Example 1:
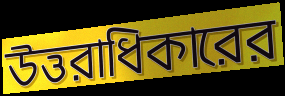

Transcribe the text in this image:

উত্তরাধিকারের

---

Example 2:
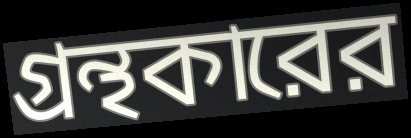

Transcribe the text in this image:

গ্রন্থকারের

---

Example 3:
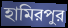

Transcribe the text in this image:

হামিরপুর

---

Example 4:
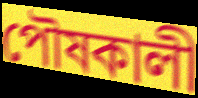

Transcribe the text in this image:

পৌষকালী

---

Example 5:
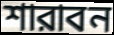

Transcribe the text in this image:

শারাবন